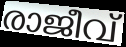
രാജീവ്